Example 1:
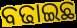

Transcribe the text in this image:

ବଢାଇଛ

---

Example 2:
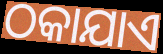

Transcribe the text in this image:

ଠକାଯାଏ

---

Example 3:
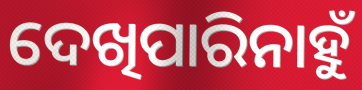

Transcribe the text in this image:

ଦେଖିପାରିନାହୁଁ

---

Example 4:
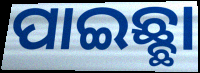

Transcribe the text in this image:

ପାଇଛ୍ଛା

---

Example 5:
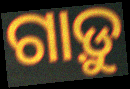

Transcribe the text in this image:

ଗାଡ଼ୁ